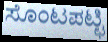
ಸೊಂಟಪಟ್ಟಿ